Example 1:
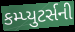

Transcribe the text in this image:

કમ્પ્યુટર્સની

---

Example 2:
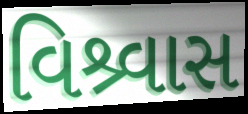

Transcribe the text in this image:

વિશ્ર્વાસ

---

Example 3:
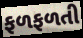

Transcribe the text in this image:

ફળફળતી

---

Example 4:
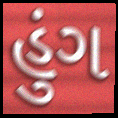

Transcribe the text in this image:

હુંગ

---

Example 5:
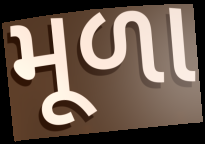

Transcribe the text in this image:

મૂળા